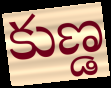
కుణ్డ